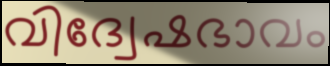
വിദ്വേഷഭാവം